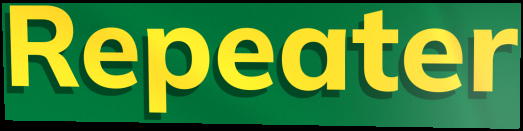
Repeater